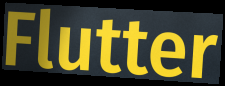
Flutter